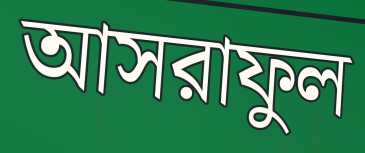
আসরাফুল